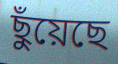
ছুঁয়েছে